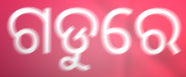
ଗଡୁରେ